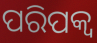
ପରିପକ୍ବ